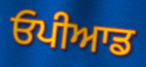
ਓਪੀਆਡ